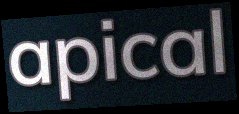
apical